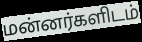
மன்னர்களிடம்